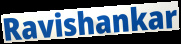
Ravishankar